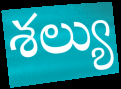
శల్యు